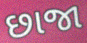
છાજા